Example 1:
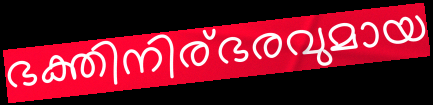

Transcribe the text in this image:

ഭക്തിനിര്ഭരവുമായ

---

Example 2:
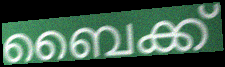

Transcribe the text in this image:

ബൈക്ക്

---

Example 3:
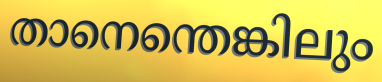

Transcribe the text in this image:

താനെന്തെങ്കിലും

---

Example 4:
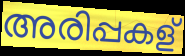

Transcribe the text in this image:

അരിപ്പകള്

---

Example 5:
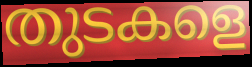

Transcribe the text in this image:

തുടകളെ